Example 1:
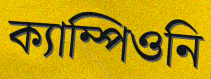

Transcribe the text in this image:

ক্যাম্পিওনি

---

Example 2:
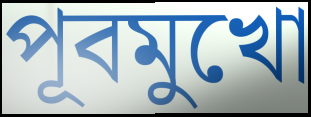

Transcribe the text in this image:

পূবমুখো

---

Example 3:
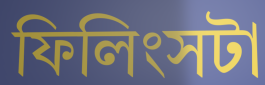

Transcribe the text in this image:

ফিলিংসটা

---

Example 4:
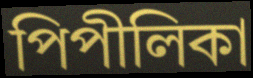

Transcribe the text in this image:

পিপীলিকা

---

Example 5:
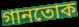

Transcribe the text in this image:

গানতোক